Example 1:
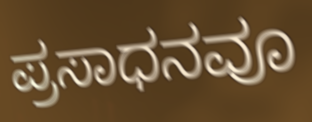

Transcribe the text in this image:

ಪ್ರಸಾಧನವೂ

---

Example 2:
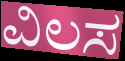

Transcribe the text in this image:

ವಿಲಸ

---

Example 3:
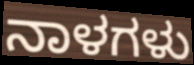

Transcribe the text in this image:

ನಾಳಗಳು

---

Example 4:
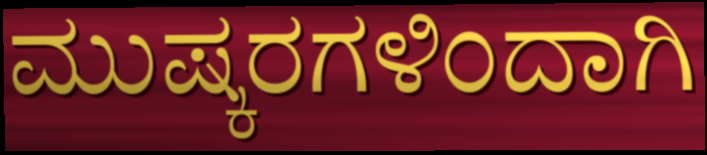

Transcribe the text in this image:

ಮುಷ್ಕರಗಳಿಂದಾಗಿ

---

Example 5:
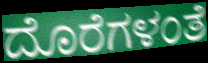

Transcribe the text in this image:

ದೊರೆಗಳಂತೆ